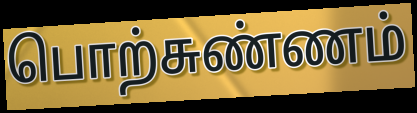
பொற்சுண்ணம்